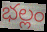
భల్లం